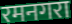
रमनगरा